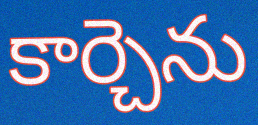
కార్చెను